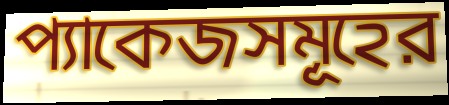
প্যাকেজসমূহের